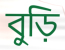
বুড়ি